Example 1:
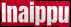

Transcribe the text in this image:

Inaippu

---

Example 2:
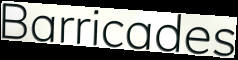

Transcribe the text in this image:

Barricades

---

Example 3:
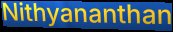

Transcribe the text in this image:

Nithyananthan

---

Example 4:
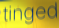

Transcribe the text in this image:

tinged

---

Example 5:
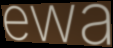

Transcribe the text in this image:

ewa